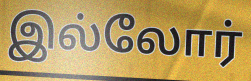
இல்லோர்